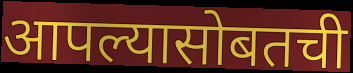
आपल्यासोबतची